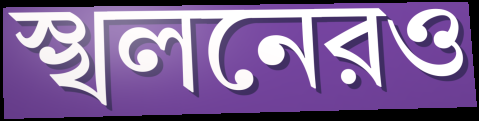
স্খলনেরও